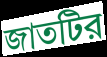
জাতটির